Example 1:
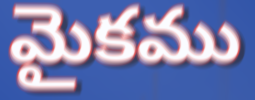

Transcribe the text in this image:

మైకము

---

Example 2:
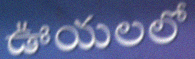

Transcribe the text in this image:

ఊయలలో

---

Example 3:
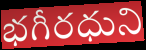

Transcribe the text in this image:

భగీరధుని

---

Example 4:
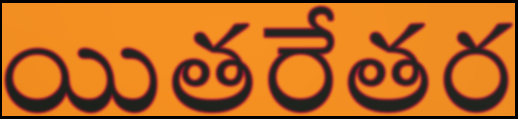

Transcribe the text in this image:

యితరేతర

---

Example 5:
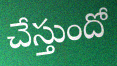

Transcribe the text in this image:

చేస్తుందో